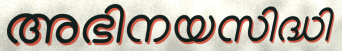
അഭിനയസിദ്ധി